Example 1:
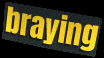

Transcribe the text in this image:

braying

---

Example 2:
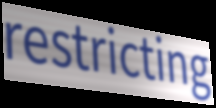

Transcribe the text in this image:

restricting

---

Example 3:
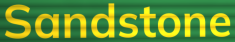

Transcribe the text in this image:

Sandstone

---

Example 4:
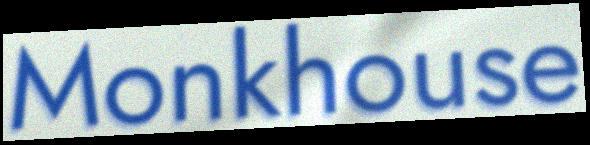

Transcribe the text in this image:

Monkhouse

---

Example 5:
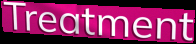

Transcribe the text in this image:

Treatment